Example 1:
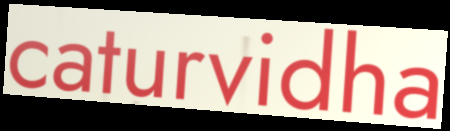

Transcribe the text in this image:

caturvidha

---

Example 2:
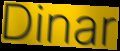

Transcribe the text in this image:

Dinar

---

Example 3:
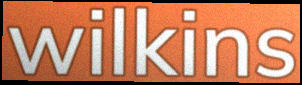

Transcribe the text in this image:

wilkins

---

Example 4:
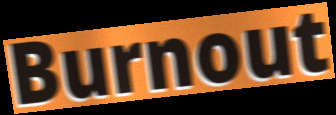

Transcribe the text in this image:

Burnout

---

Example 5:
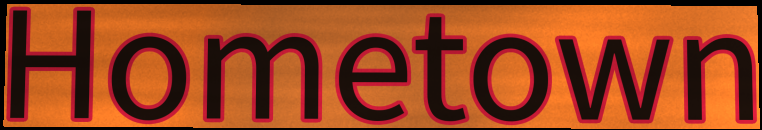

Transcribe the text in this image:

Hometown